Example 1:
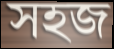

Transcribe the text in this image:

সহজ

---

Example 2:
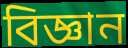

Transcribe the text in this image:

বিজ্ঞান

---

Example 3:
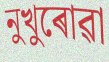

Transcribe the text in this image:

নুখুৰোৱা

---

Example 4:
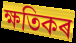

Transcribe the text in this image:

ক্ষতিকৰ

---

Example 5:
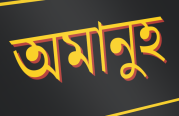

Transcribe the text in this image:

অমানুহ